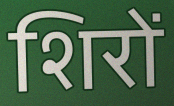
शिरों